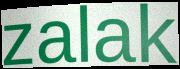
zalak